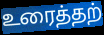
உரைத்தற்